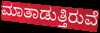
ಮಾತಾಡುತ್ತಿರುವೆ